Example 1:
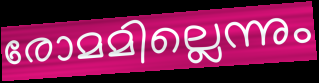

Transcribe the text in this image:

രോമമില്ലെന്നും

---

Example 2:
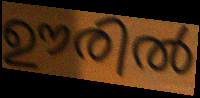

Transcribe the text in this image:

ഊരിൽ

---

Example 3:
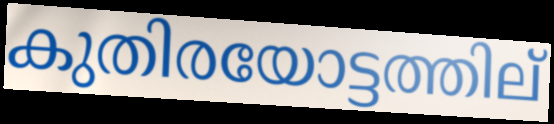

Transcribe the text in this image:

കുതിരയോട്ടത്തില്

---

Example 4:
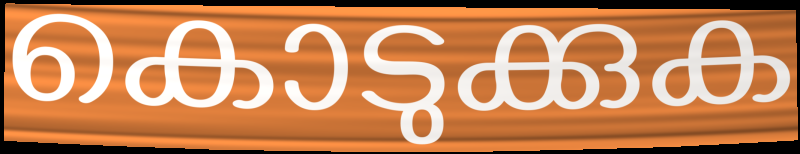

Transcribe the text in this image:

കൊടുക്കുക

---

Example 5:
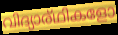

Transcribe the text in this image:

വിദ്യാര്ഥികളോ